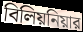
বিলিয়নিয়ার